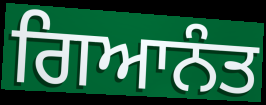
ਗਿਆਨੰਤ